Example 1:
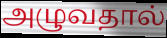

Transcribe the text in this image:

அழுவதால்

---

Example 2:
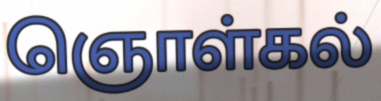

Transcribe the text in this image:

ஞொள்கல்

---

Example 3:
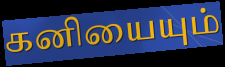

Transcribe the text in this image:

கனியையும்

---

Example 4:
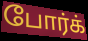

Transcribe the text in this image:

போர்க்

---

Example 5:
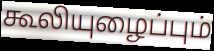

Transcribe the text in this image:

கூலியுழைப்பும்